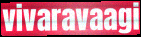
vivaravaagi